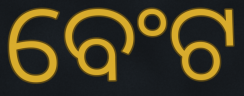
ବେଂଟ